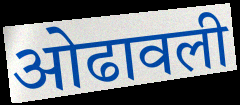
ओढावली